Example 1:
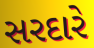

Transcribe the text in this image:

સરદારે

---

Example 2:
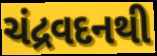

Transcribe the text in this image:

ચંદ્રવદનથી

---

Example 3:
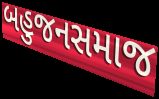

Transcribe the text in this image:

બહુજનસમાજ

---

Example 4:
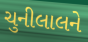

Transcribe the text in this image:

ચુનીલાલને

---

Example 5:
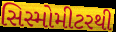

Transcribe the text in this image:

સિસ્મોમીટરથી